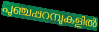
പുഞ്ചപ്പറമ്പുകളിൽ